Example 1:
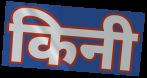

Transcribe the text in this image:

किनी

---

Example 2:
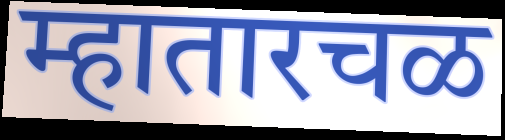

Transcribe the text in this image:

म्हातारचळ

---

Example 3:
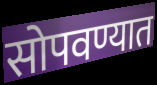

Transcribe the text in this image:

सोपवण्यात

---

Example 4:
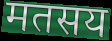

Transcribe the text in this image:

मतसय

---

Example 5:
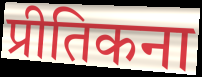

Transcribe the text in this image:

प्रीतिकना